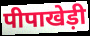
पीपाखेड़ी